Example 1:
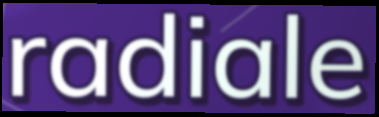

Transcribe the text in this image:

radiale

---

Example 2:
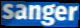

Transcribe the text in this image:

sanger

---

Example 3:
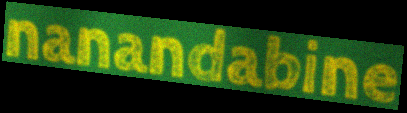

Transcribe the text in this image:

nanandabine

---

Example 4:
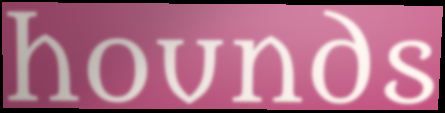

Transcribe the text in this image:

hounds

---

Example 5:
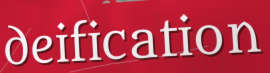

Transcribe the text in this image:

deification